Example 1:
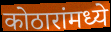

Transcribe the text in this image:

कोठारांमध्ये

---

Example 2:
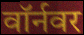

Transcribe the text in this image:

वॉर्नवर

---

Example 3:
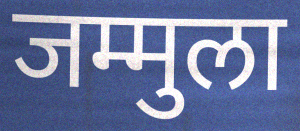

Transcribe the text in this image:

जम्मुला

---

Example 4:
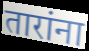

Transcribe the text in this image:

तारांना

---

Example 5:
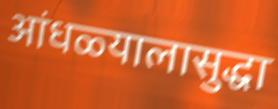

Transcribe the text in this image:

आंधळ्यालासुद्धा